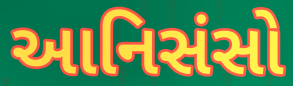
આનિસંસો